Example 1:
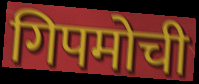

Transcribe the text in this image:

गिपमोची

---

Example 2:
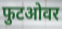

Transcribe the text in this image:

फुटओवर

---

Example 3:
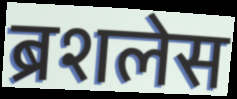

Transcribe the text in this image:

ब्रशलेस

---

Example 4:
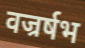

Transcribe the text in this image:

वज्रर्षभ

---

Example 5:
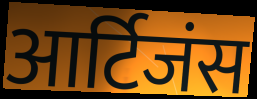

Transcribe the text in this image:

आर्टिजंस